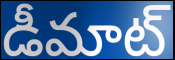
డీమాట్